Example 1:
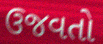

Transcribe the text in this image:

ઉજવતો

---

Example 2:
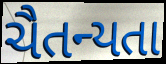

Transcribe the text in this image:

ચૈતન્યતા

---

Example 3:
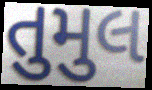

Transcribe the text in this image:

તુમુલ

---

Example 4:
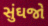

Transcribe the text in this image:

સુંઘજો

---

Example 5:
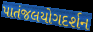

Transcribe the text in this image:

પાતંજલયોગદર્શન